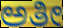
ಅತೀ